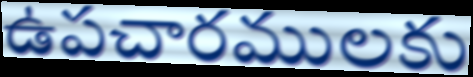
ఉపచారములకు